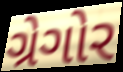
ગ્રેગોર